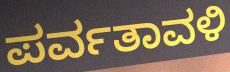
ಪರ್ವತಾವಳಿ